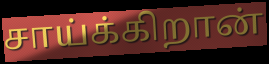
சாய்க்கிறான்